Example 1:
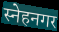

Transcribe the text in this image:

स्नेहनगर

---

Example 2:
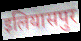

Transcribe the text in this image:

इलियासपुर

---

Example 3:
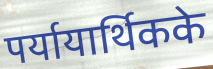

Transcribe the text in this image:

पर्यायार्थिकके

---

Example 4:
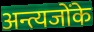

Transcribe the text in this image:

अन्त्यजोंके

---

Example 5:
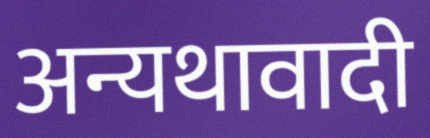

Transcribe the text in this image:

अन्यथावादी